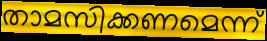
താമസിക്കണമെന്ന്